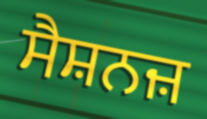
ਸੈਸ਼ਨਜ਼